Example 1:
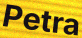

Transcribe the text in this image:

Petra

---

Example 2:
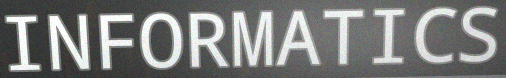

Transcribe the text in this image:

INFORMATICS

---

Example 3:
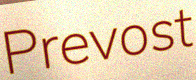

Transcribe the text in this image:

Prevost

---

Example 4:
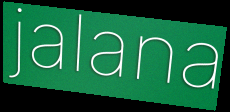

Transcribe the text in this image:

jalana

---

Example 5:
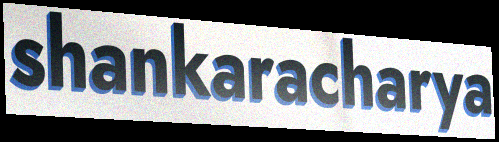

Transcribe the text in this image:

shankaracharya